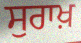
ਸੁਰਾਖ਼